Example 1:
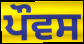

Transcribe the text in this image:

ਪੌਵਸ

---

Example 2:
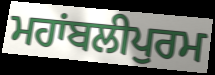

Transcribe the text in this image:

ਮਹਾਂਬਲੀਪੁਰਮ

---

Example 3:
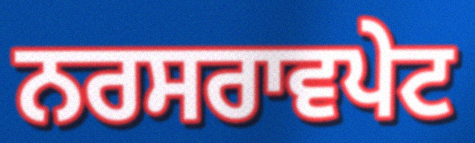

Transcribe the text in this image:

ਨਰਸਰਾਵਪੇਟ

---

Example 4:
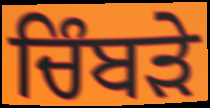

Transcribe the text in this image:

ਚਿੰਬਡ਼ੇ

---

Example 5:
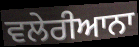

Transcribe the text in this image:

ਵਲੇਰੀਆਨਾ